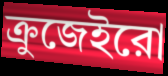
ক্রুজেইরো